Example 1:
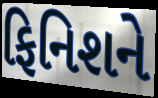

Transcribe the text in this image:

ફિનિશને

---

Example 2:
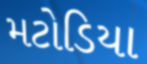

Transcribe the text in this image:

મટોડિયા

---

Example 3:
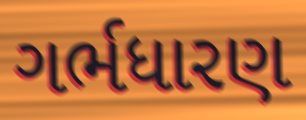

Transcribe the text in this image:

ગર્ભધારણ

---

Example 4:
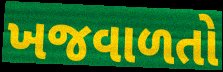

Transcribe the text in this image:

ખજવાળતો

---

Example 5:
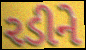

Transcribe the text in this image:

રડીને